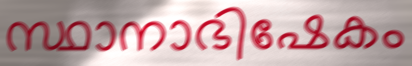
സ്ഥാനാഭിഷേകം